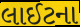
લાઈટના